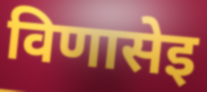
विणासेइ